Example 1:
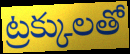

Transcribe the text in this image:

ట్రక్కులతో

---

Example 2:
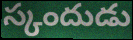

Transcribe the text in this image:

స్కందుడు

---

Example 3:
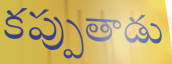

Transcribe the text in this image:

కప్పుతాడు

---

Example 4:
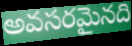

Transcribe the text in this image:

అవసరమైనది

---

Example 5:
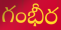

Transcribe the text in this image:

గంభీర